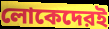
লোকেদেরই